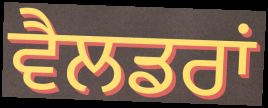
ਵੈਲਡਰਾਂ